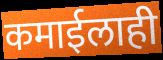
कमाईलाही